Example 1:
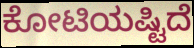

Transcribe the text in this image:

ಕೋಟಿಯಷ್ಟಿದೆ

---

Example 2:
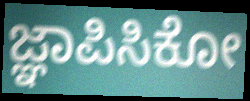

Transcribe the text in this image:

ಜ್ಞಾಪಿಸಿಕೋ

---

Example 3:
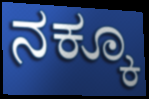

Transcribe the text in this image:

ನಕ್ಕೂ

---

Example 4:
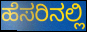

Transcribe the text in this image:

ಹೆಸರಿನಲ್ಲಿ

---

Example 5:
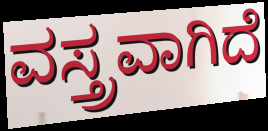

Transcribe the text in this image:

ವಸ್ತ್ರವಾಗಿದೆ